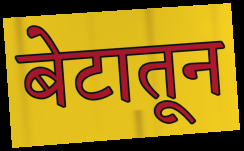
बेटातून